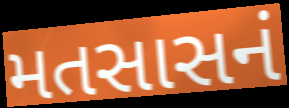
મતસાસનં